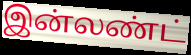
இன்லண்ட்